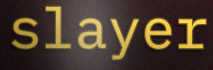
slayer